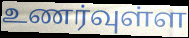
உணர்வுள்ள